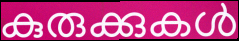
കുരുക്കുകൾ